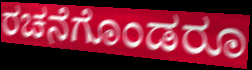
ರಚನೆಗೊಂಡರೂ